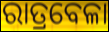
ରାତ୍ରବେଳା